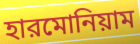
হারমোনিয়াম